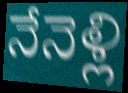
నేనెళ్లి